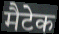
मैटेक